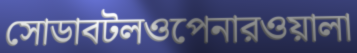
সোডাবটলওপেনারওয়ালা